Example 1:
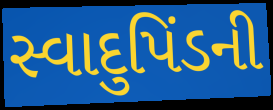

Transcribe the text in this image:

સ્વાદુપિંડની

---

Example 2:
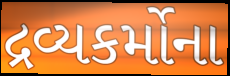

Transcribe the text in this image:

દ્રવ્યકર્મોના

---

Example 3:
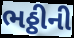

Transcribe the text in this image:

ભઠ્ઠીની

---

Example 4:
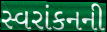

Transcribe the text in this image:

સ્વરાંકનની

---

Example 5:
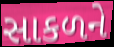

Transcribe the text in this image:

સાકળને